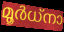
മൂർധ്നാ